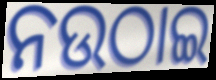
ନଉଠାଇ